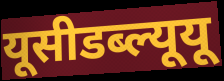
यूसीडब्ल्यूयू